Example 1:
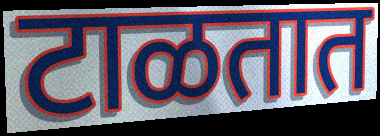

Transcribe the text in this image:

टाळतात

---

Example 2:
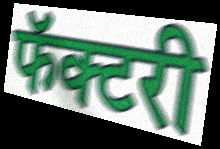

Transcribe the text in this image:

फॅक्‍टरी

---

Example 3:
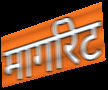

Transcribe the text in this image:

मार्गारेट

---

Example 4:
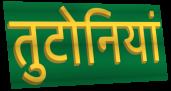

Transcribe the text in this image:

तुटोनियां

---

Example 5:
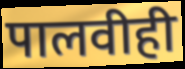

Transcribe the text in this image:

पालवीही